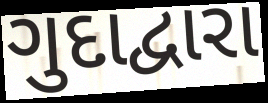
ગુદાદ્વારા